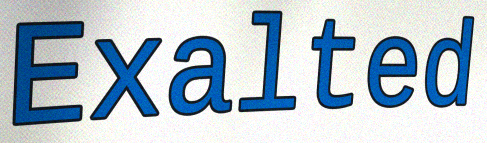
Exalted